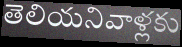
తెలియనివాళ్లకు